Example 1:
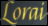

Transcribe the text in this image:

Lorai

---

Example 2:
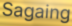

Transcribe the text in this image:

Sagaing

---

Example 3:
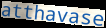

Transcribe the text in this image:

atthavase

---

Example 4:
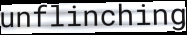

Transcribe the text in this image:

unflinching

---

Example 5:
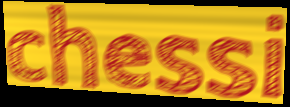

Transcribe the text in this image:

chessi